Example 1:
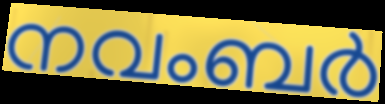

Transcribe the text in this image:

നവംബർ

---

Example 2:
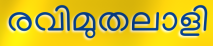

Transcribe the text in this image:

രവിമുതലാളി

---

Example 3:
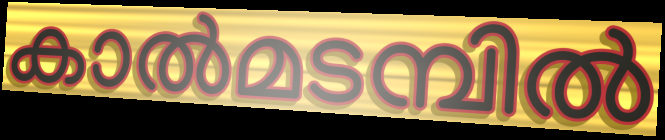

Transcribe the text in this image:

കാൽമടമ്പിൽ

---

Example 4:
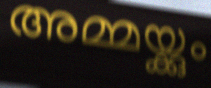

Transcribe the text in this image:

അമ്മയ്ക്കും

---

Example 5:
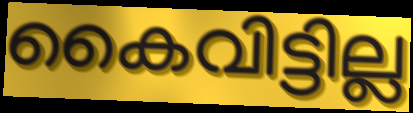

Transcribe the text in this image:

കൈവിട്ടില്ല